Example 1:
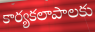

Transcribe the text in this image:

కార్యకలాపాలకు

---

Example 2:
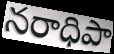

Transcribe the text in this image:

నరాధిపా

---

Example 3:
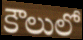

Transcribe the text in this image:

కౌలులో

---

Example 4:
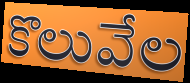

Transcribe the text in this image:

కొలువేల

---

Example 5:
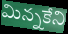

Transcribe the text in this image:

మిన్నకేని